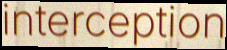
interception